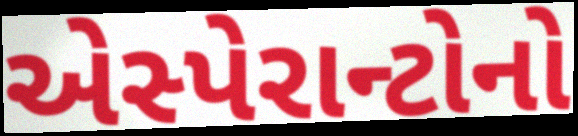
એસ્પેરાન્ટોનો